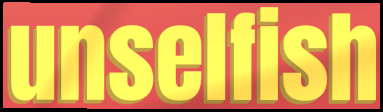
unselfish